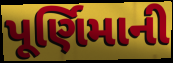
પૂર્ણિમાની